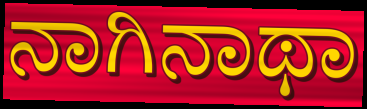
ನಾಗಿನಾಥಾ